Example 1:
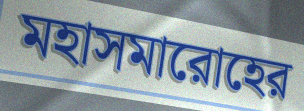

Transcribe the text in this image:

মহাসমারোহের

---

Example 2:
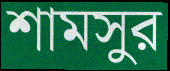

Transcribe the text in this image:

শামসুর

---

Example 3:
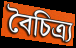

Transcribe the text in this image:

বৈচিত্র্য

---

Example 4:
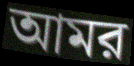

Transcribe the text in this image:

আমর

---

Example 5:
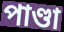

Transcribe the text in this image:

পাণ্ডা